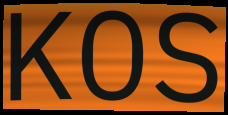
KOS